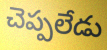
చెప్పలేడు